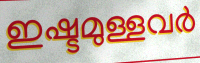
ഇഷ്ടമുള്ളവർ